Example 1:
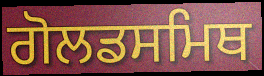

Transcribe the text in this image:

ਗੋਲਡਸਮਿਥ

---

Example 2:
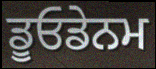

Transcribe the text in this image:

ਡੂਓਡੇਨਮ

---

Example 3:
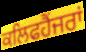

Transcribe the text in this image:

ਕਲਿਫਹੈਂਜਰਾਂ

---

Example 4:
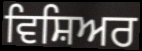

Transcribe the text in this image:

ਵਿਸ਼ਿਅਰ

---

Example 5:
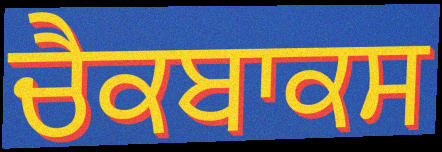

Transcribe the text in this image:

ਚੈਕਬਾਕਸ